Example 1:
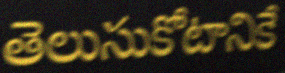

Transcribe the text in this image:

తెలుసుకోటానికే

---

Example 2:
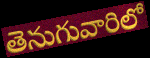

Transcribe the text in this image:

తెనుగువారిలో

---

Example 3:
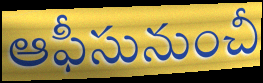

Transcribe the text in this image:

ఆఫీసునుంచీ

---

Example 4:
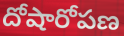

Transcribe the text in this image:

దోషారోపణ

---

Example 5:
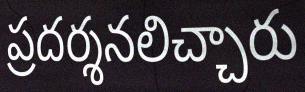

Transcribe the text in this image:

ప్రదర్శనలిచ్చారు